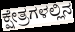
ಕ್ಷೇತ್ರಗಳಲ್ಲಿನ